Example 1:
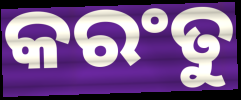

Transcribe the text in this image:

କରଂତୁ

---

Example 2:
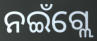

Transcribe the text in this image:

ନଇଁଗ୍ଲେ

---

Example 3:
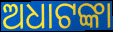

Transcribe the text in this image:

ଅଧାଟଙ୍କା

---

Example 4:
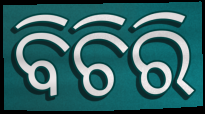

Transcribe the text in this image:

ବିଚିରି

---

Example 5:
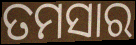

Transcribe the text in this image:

ତମସାର